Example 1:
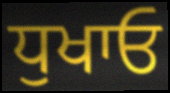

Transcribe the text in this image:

ਧੁਖਾਓ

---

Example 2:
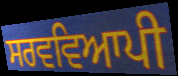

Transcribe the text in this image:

ਸਰਵਵਿਆਪੀ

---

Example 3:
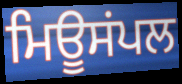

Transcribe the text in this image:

ਮਿਊਸਂਪਲ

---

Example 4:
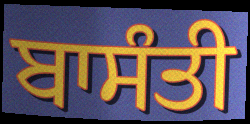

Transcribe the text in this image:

ਬਾਸੰਤੀ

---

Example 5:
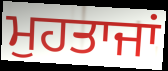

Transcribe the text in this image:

ਮੁਹਤਾਜਾਂ